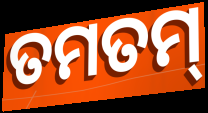
ତମତମ୍